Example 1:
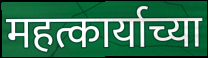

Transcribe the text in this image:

महत्कार्याच्या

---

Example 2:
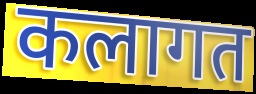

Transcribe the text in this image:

कलागत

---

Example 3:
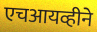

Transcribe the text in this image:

एचआयव्हीने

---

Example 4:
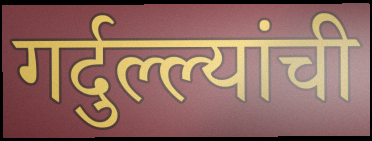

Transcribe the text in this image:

गर्दुल्ल्यांची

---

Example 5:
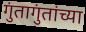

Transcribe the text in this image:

गुंतागुंतांच्या